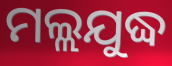
ମଲ୍ଲଯୁଦ୍ଧ